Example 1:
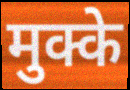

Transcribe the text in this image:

मुक्के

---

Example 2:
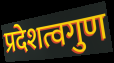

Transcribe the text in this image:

प्रदेशत्वगुण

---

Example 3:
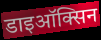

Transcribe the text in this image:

डाइऑक्सिन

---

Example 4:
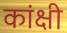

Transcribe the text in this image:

कांक्षी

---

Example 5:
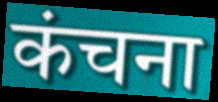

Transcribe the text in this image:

कंचना